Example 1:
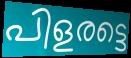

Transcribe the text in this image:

പിളരട്ടെ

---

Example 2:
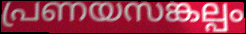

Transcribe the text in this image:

പ്രണയസങ്കല്പം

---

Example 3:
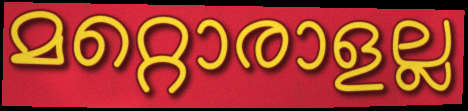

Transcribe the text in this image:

മറ്റൊരാളല്ല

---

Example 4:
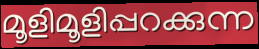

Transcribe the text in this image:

മൂളിമൂളിപ്പറക്കുന്ന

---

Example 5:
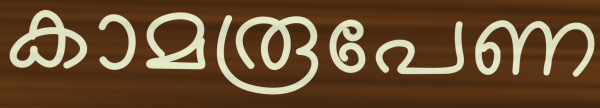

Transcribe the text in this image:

കാമരൂപേണ